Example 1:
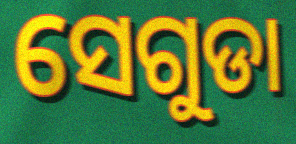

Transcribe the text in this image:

ସେଗୁଡା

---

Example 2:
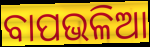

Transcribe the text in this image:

ବାପଭଳିଆ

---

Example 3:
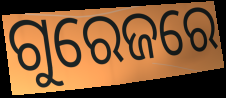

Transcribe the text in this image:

ଗୁରେଜରେ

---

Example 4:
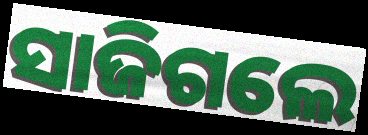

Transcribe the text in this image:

ସାଜିଗଲେ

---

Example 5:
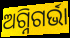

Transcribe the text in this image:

ଅଗ୍ନିଗର୍ଭା